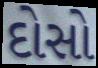
દોસો